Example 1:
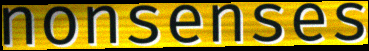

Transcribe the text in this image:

nonsenses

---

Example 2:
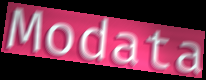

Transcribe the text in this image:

Modata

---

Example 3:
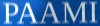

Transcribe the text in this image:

PAAMI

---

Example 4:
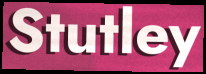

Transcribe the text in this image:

Stutley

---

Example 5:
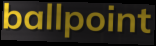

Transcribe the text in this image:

ballpoint